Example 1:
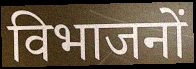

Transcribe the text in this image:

विभाजनों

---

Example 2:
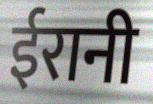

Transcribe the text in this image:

ईरानी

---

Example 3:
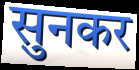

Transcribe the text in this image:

सुनकर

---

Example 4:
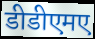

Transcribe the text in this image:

डीडीएमए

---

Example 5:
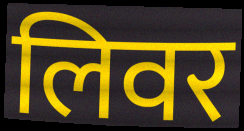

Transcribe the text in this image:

लिवर